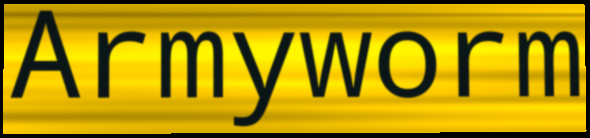
Armyworm